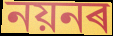
নয়নৰ